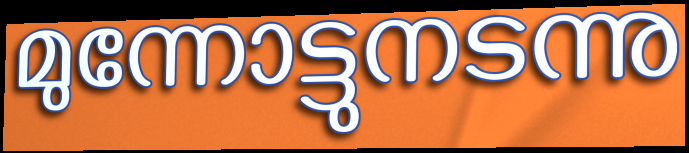
മുന്നോട്ടുനടന്നു